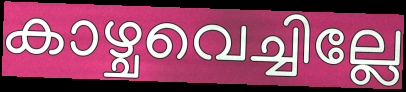
കാഴ്ചവെച്ചില്ലേ